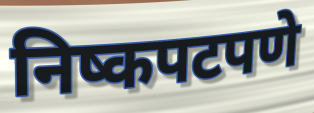
निष्कपटपणे